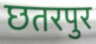
छतरपुर